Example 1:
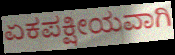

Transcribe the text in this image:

ಏಕಪಕ್ಷೀಯವಾಗಿ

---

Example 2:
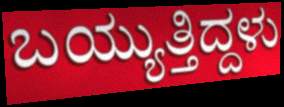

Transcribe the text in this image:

ಬಯ್ಯುತ್ತಿದ್ದಳು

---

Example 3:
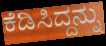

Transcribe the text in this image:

ಕೆಡಿಸಿದ್ದನ್ನು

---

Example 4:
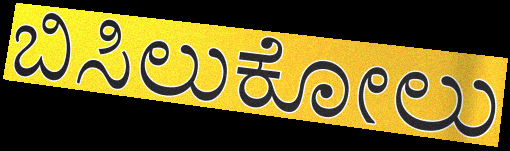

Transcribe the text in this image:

ಬಿಸಿಲುಕೋಲು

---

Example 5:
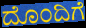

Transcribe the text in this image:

ದೊಂದಿಗೆ